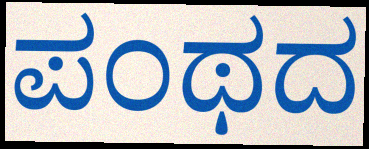
ಪಂಥದ